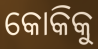
କୋକିକୁ